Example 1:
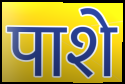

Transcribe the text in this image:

पाशे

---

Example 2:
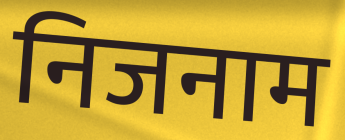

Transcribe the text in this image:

निजनाम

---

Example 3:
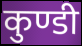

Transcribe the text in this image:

कुण्डी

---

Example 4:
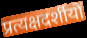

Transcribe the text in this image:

प्रत्यक्षदर्शीयों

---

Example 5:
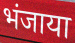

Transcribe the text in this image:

भंजाया